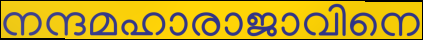
നന്ദമഹാരാജാവിനെ